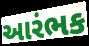
આરંભક